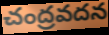
చంద్రవదన